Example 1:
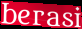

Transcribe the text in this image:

berasi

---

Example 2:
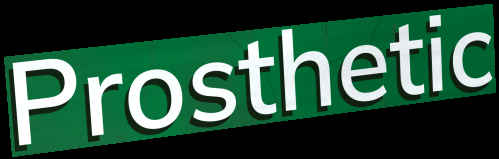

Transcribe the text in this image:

Prosthetic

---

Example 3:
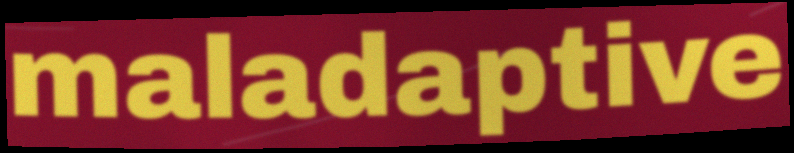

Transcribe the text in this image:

maladaptive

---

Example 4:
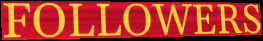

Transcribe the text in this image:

FOLLOWERS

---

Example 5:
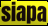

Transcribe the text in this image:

siapa